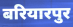
बरियारपुर